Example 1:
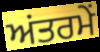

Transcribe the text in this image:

ਅਂਤਰਮੇਂ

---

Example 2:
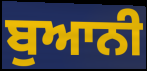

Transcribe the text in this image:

ਬੁਆਨੀ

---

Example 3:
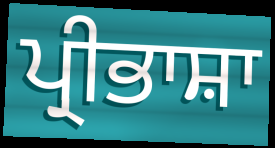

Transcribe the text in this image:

ਪ੍ਰੀਭਾਸ਼ਾ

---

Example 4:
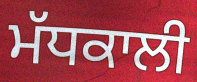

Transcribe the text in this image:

ਮੱਧਕਾਲੀ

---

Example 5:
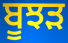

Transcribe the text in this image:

ਬੂਝੜ